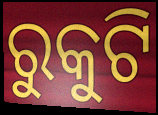
ରୁକୁଟି